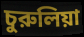
চুরুলিয়া